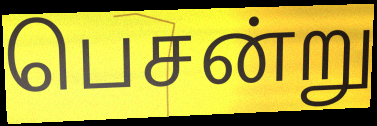
பெசன்று